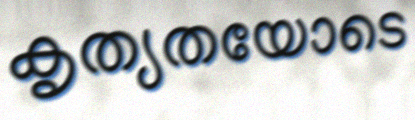
കൃത്യതയോടെ